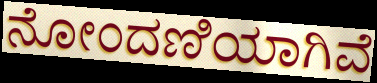
ನೋಂದಣಿಯಾಗಿವೆ